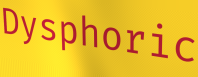
Dysphoric